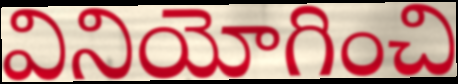
వినియోగించి